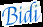
Bidi